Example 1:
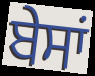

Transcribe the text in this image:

ਬੇਸਾਂ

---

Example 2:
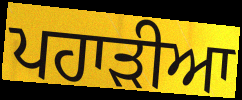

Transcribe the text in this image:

ਪਹਾੜੀਆ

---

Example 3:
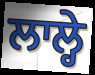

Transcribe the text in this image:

ਲਾਲ੍ਹੇ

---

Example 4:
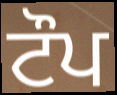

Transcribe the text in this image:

ਟੌਪ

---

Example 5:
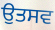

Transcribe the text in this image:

ਉਤਸਵ